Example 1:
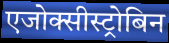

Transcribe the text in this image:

एजोक्सीस्ट्रोबिन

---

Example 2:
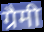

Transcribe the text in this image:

ग्रैमी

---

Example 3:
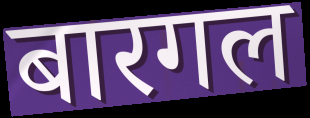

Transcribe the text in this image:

बारगल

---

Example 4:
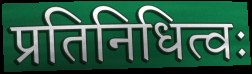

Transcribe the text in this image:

प्रतिनिधित्वः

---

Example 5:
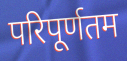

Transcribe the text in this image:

परिपूर्णतम